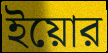
ইয়োর